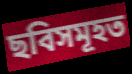
ছবিসমূহত